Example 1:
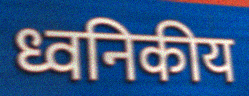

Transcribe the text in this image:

ध्वनिकीय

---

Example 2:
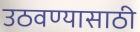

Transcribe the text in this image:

उठवण्यासाठी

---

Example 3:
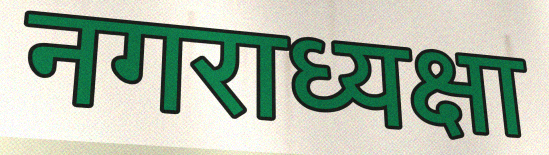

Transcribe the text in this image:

नगराध्यक्षा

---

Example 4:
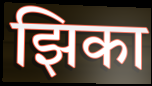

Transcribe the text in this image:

झिका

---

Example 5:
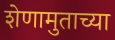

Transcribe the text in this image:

शेणामुताच्या